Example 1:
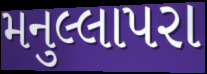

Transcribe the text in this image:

મનુલ્લાપરા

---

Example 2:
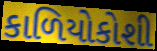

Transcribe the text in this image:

કાળિયોકોશી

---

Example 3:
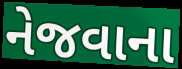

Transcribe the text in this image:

નેજવાના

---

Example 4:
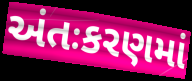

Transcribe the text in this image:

અંતઃકરણમાં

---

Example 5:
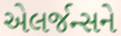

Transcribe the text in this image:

એલર્જન્સને